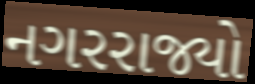
નગરરાજ્યો